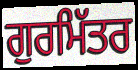
ਗੁਰਮਿੱਤਰ